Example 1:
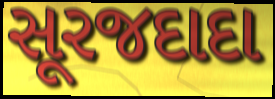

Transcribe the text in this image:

સૂરજદાદા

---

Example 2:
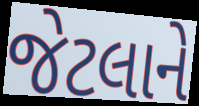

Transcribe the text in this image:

જેટલાને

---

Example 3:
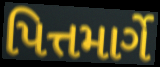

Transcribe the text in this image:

પિત્તમાર્ગે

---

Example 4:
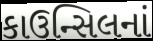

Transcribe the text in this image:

કાઉન્સિલનાં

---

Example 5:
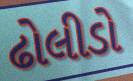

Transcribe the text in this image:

ઢોલીડો